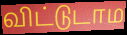
விட்டுடாம